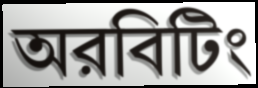
অরবিটিং